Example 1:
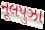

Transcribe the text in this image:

નૂલપુઝા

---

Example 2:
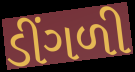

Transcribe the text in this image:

ડીંગળી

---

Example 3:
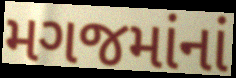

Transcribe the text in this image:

મગજમાંનાં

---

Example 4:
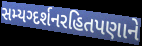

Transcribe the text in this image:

સમ્યગ્દર્શનરહિતપણાને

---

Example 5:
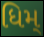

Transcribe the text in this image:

ધિમ્